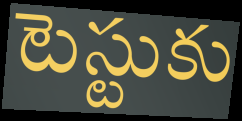
టెస్టుకు